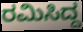
ರಮಿಸಿದ್ದ